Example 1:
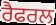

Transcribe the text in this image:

ਰੈਫਰਲ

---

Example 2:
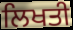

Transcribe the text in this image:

ਲਿਖਤੀ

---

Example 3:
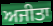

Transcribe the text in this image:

ਅਜੀਤਾ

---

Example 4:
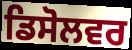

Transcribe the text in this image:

ਡਿਸੋਲਵਰ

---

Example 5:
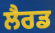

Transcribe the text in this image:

ਲੈਰਡ